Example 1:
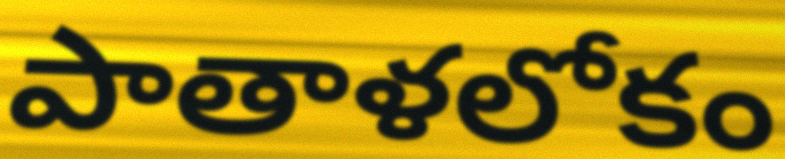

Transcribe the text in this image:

పాతాళలోకం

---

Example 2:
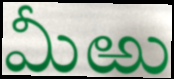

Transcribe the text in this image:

మీఱు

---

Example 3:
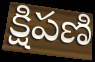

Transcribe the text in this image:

క్షిపణి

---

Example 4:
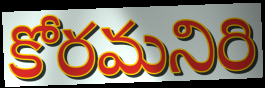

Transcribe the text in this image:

కోరమనిరి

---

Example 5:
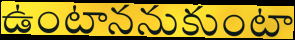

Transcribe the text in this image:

ఉంటాననుకుంటా